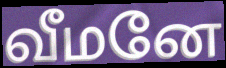
வீமனே